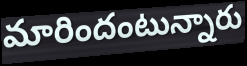
మారిందంటున్నారు